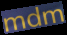
mdm